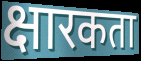
क्षारकता